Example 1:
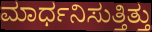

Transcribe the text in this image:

ಮಾರ್ಧನಿಸುತ್ತಿತ್ತು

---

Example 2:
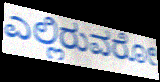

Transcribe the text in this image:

ಎಲ್ಲಿರುವರೋ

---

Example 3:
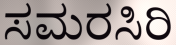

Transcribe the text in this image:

ಸಮರಸಿರಿ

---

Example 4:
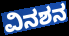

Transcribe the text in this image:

ವಿನಶನ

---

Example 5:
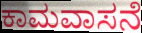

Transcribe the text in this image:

ಕಾಮವಾಸನೆ